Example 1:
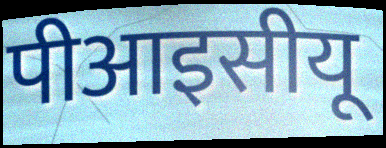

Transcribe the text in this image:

पीआइसीयू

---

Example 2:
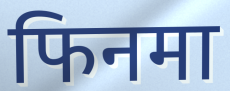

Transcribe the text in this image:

फिनमा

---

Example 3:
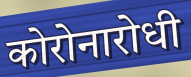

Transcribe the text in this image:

कोरोनारोधी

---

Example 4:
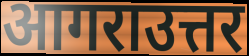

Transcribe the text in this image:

आगराउत्तर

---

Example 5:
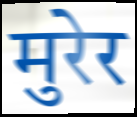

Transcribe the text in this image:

मुरेर